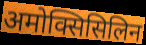
अमोक्सिसिलिन